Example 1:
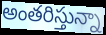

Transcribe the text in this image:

అంతరిస్తున్నా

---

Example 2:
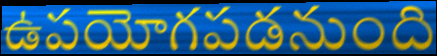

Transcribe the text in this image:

ఉపయోగపడనుంది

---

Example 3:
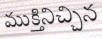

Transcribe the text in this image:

ముక్తినిచ్చిన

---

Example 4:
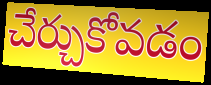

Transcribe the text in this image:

చేర్చుకోవడం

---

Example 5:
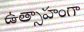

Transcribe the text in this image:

ఉత్సాహంగా